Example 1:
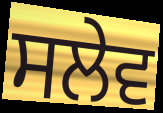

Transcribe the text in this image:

ਸਲੇਵ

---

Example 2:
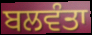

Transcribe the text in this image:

ਬਲਵੰਤਾ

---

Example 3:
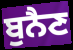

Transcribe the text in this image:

ਬੁਨੈਣ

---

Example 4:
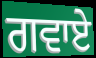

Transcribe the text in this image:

ਗਵਾਏ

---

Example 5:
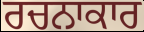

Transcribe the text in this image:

ਰਚਨਾਕਾਰ